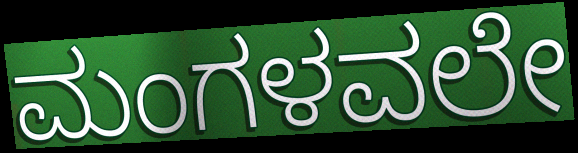
ಮಂಗಳವಲೇ